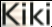
Kiki